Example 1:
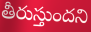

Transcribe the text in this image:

తీరుస్తుందని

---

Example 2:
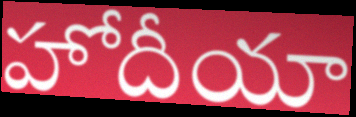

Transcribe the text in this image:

హోదీయా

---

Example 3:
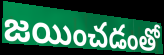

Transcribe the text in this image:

జయించడంతో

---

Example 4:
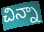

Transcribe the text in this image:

చిన్నా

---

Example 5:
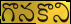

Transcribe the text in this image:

గొనకొని